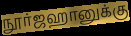
நூர்ஜஹானுக்கு